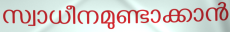
സ്വാധീനമുണ്ടാക്കാൻ